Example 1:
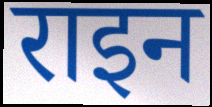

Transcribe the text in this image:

राइन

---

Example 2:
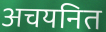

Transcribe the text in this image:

अचयनित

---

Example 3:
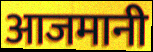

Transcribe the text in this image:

आजमानी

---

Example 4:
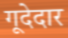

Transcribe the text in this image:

गूदेदार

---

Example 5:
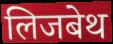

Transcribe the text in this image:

लिजबेथ